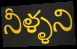
నీళ్ళని